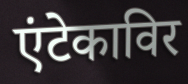
एंटेकाविर